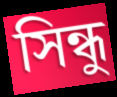
সিন্ধু